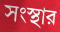
সংস্থার